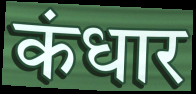
कंधार